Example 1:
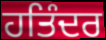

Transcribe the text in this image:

ਹਤਿੰਦਰ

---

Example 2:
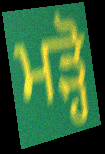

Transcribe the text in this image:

ਮੜ੍ਹੋ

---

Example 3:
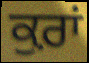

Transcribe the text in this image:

ਕ਼ੁਰਾਂ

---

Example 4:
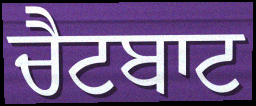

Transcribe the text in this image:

ਚੈਟਬਾਟ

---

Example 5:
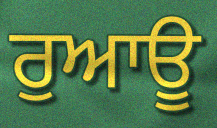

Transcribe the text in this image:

ਰੁਆਊ